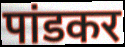
पांडकर